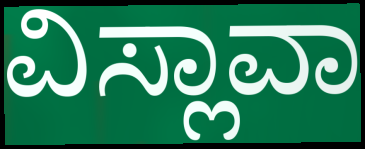
ವಿಸ್ಲಾವಾ